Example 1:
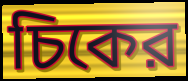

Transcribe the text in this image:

চিকের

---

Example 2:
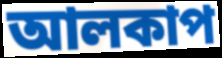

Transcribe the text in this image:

আলকাপ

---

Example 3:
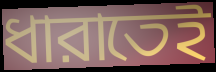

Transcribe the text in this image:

ধারাতেই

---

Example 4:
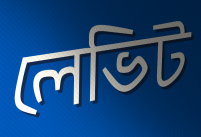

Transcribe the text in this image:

লেভিট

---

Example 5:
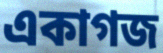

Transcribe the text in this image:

একাগজ